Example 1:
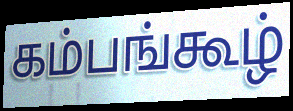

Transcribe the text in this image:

கம்பங்கூழ்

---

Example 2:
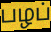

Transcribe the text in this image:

பழப்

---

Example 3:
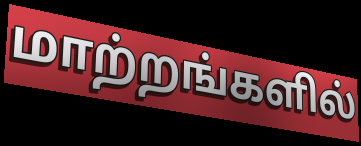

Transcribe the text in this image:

மாற்றங்களில்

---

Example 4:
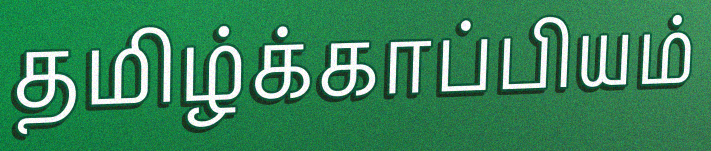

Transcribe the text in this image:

தமிழ்க்காப்பியம்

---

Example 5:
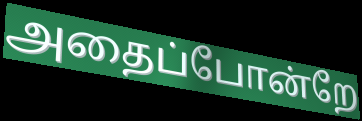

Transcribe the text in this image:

அதைப்போன்றே